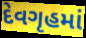
દેવગૃહમાં